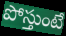
పోస్తుంటే